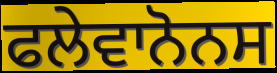
ਫਲੇਵਾਨੋਨਸ